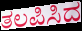
ತಲಪಿಸಿದ